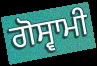
ਗੋਸ੍ਵਾਮੀ